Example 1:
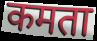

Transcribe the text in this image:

कमता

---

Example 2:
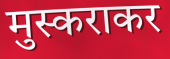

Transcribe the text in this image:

मुस्कराकर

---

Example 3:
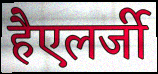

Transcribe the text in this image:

हैएलर्जी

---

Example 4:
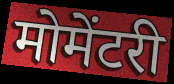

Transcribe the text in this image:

मोमेंटरी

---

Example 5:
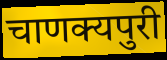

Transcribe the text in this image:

चाणक्यपुरी